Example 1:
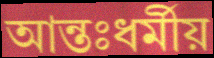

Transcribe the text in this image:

আন্তঃধর্মীয়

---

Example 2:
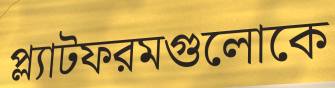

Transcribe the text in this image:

প্ল্যাটফরমগুলোকে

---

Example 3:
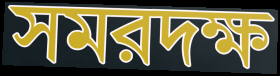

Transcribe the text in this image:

সমরদক্ষ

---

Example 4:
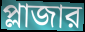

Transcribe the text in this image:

প্লাজার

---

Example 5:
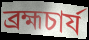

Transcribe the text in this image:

ব্রহ্মচার্য